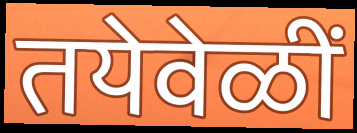
तयेवेळीं